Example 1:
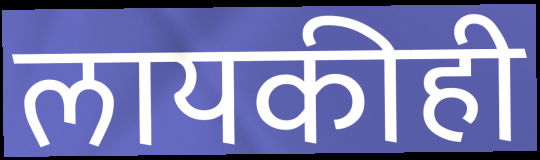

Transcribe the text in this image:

लायकीही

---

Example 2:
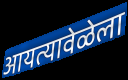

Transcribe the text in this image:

आयत्यावेळेला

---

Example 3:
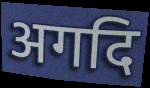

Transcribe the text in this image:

अगदि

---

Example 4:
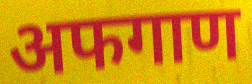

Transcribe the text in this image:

अफगाण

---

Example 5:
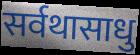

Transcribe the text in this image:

सर्वथासाधु